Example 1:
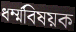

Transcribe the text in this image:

ধর্ম্মবিষয়ক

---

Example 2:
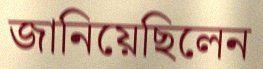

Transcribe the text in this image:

জানিয়েছিলেন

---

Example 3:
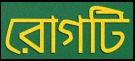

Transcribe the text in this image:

রোগটি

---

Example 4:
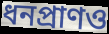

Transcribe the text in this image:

ধনপ্রাণও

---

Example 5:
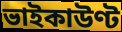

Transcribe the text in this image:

ভাইকাউণ্ট